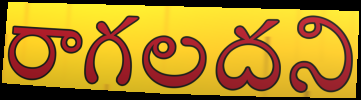
రాగలదని